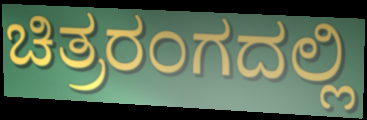
ಚಿತ್ರರಂಗದಲ್ಲಿ